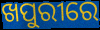
ଖପୁରୀରେ